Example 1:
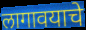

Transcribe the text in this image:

लागावयाचे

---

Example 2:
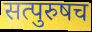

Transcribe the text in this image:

सत्पुरुषच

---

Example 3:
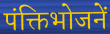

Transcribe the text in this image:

पंक्तिभोजनें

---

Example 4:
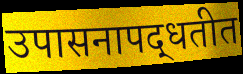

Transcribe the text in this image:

उपासनापद्धतीत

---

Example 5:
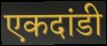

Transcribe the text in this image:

एकदांडी